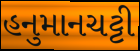
હનુમાનચટ્ટી